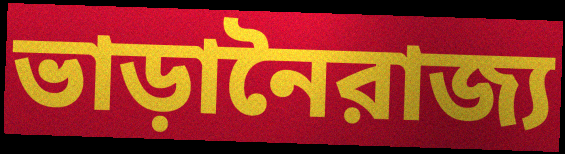
ভাড়ানৈরাজ্য